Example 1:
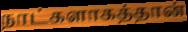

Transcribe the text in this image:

நாட்களாகத்தான்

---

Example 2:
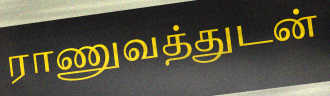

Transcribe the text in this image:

ராணுவத்துடன்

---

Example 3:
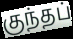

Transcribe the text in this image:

குந்தப்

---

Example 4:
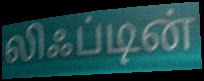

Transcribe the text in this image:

லிஃப்டின்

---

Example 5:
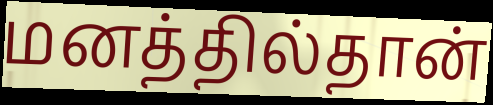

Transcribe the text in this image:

மனத்தில்தான்